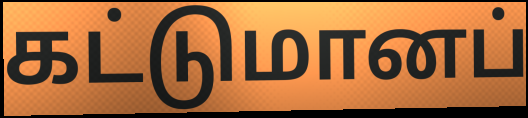
கட்டுமானப்